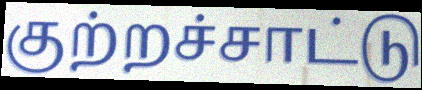
குற்றச்சாட்டு